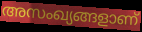
അസംഖ്യങ്ങളാണ്